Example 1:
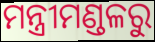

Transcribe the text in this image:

ମନ୍ତ୍ରୀମଣ୍ଡଳରୁ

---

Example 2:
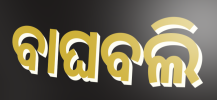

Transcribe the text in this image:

ବାଘବଲି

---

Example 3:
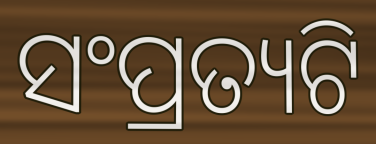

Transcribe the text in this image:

ସଂପ୍ରତ୍ୟଟି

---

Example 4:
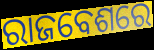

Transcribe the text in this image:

ରାଜବେଶରେ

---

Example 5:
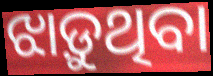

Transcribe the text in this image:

ଝାଡ଼ୁଥିବା